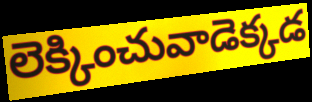
లెక్కించువాడెక్కడ